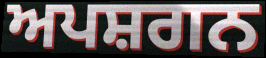
ਅਪਸ਼ਗਨ